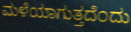
ಮಳೆಯಾಗುತ್ತದೆಂದು